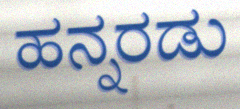
ಹನ್ನರಡು